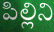
పిల్లిని